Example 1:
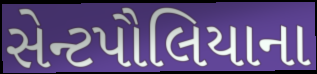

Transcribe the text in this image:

સેન્ટપૌલિયાના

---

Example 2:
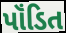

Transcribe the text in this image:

પૉંડિત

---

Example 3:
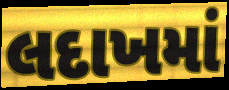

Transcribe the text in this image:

લદાખમાં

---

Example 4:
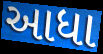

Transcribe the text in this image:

આધા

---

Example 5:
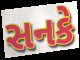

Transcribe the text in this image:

સનકે